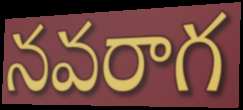
నవరాగ